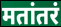
मतांतरं